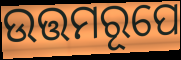
ଉତ୍ତମରୂପେ